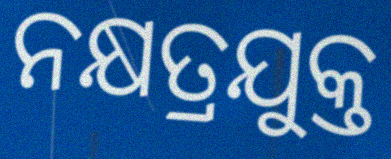
ନକ୍ଷତ୍ରଯୁକ୍ତ